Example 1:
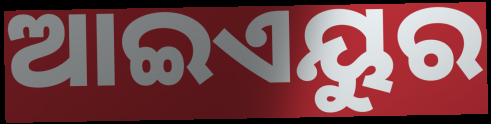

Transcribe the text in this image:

ଆଇଏୟୁର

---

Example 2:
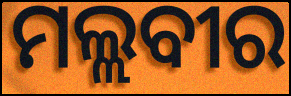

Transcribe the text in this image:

ମଲ୍ଲବୀର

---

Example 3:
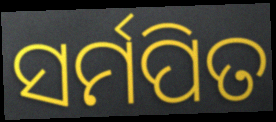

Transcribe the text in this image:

ସର୍ମପିତ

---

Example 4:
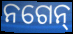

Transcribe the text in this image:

ନଗେନ୍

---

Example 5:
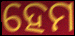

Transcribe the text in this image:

ହେମ